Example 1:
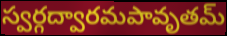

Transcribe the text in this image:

స్వర్గద్వారమపావృతమ్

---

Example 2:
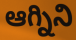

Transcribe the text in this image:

ఆగ్నిని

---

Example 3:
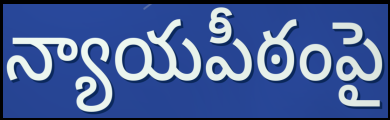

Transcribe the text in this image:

న్యాయపీఠంపై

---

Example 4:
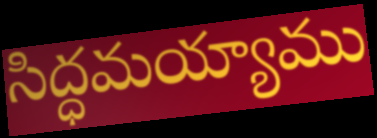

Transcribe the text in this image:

సిద్ధమయ్యాము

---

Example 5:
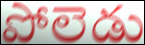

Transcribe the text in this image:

పోలెడు